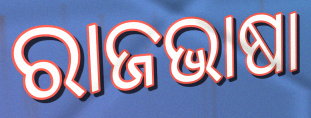
ରାଜଭାଷା